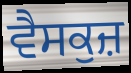
ਵੈਸਕੁਜ਼